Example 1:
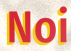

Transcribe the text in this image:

Noi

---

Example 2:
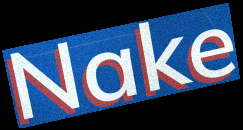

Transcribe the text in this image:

Nake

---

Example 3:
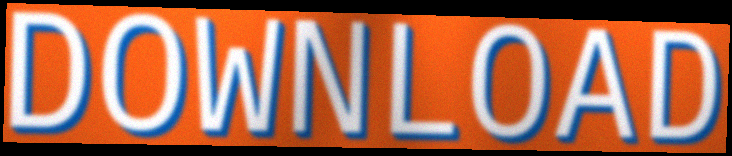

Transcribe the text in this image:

DOWNLOAD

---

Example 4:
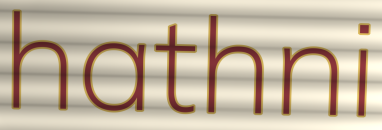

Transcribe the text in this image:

hathni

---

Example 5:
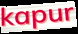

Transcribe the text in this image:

kapur